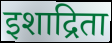
इशाद्रिता